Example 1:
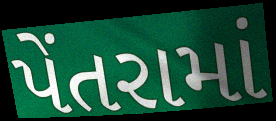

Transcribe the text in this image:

પેંતરામાં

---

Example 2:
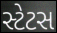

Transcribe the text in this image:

સ્ટેટસ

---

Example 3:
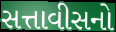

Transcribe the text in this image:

સત્તાવીસનો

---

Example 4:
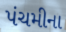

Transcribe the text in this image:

પંચમીના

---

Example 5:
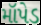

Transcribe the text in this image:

મૉપેડ